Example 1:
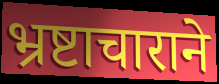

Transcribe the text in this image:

भ्रष्टाचाराने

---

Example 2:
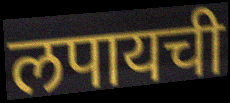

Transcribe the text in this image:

लपायची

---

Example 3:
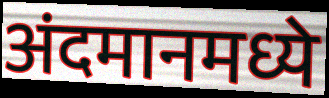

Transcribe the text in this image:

अंदमानमध्ये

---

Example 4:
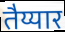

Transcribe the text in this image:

तैय्यार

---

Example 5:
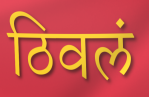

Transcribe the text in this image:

ठिवलं